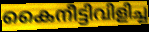
കൈനീട്ടിവിളിച്ച